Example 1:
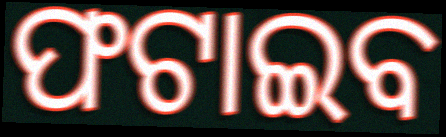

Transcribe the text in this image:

ଫଟାଇବ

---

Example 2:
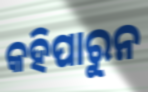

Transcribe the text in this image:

କହିପାରୁନ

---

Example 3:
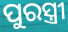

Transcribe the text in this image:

ପୁରସ୍ତ୍ରୀ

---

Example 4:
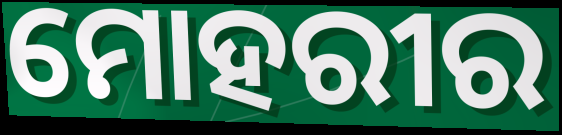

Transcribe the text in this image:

ମୋହରୀର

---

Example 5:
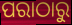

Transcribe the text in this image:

ପରାଠାରୁ